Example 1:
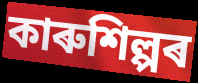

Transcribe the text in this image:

কাৰুশিল্পৰ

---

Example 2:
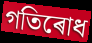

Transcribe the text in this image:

গতিৰোধ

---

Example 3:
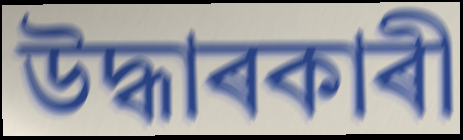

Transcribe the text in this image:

উদ্ধাৰকাৰী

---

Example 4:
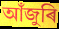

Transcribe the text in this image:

আঁজুৰি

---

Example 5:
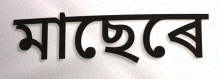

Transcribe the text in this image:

মাছেৰে